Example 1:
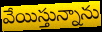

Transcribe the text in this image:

వేయిస్తున్నాను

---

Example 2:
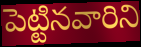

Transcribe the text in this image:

పెట్టినవారిని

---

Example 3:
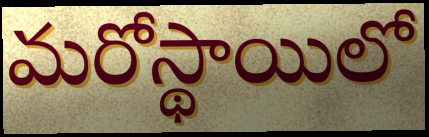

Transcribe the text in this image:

మరోస్థాయిలో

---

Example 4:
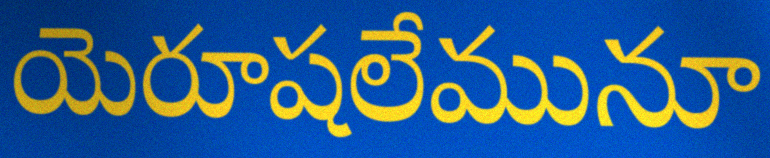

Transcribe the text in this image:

యెరూషలేమునూ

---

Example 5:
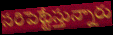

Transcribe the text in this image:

సరిపెట్టేస్తున్నారు